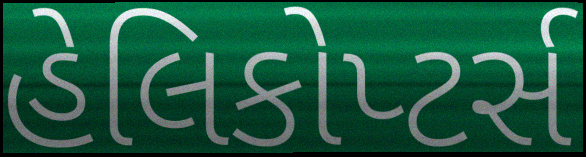
હેલિકોપ્ટર્સ